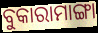
ବୁକାରାମାଙ୍ଗା